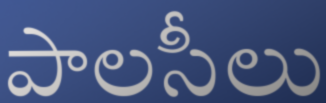
పాలసీలు